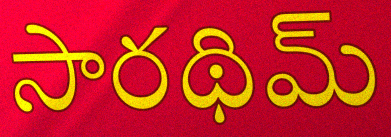
సారథిమ్